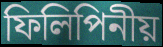
ফিলিপিনীয়